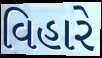
વિહારે